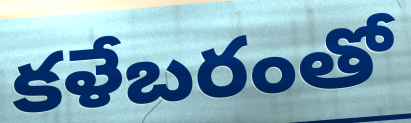
కళేబరంతో